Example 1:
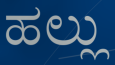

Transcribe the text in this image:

ಹಲ್ಲು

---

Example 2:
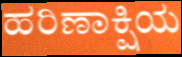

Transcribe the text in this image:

ಹರಿಣಾಕ್ಷಿಯ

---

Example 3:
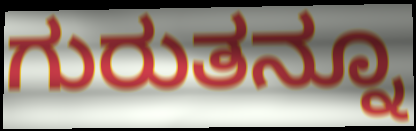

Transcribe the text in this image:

ಗುರುತನ್ನೂ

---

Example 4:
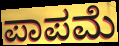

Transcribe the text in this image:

ಪಾಪಮೆ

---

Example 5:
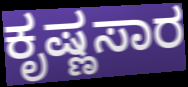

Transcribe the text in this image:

ಕೃಷ್ಣಸಾರ